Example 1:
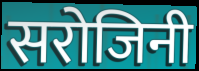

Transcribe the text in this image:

सरोजिनी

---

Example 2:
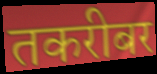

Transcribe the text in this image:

तकरीबर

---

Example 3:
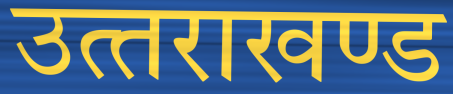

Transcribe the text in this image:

उत्‍तराखण्‍ड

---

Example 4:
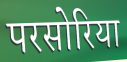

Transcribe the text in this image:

परसोरिया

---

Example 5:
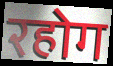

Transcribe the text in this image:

रहोग